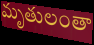
మృతులంతా